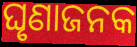
ଘୃଣାଜନକ